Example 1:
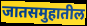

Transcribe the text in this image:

जातसमुहातील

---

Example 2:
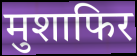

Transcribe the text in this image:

मुशाफिर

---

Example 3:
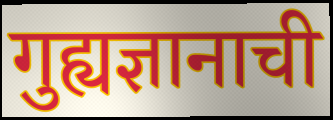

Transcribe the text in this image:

गुह्यज्ञानाची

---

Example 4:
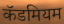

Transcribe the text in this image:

कॅडमियम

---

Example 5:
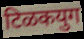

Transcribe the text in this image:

टिळकयुग